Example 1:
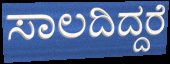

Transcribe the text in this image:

ಸಾಲದಿದ್ದರೆ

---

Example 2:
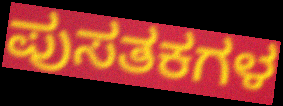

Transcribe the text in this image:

ಪುಸತಕಗಳ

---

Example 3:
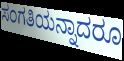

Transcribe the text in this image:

ಸಂಗತಿಯನ್ನಾದರೂ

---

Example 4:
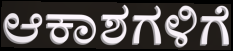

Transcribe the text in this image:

ಆಕಾಶಗಳಿಗೆ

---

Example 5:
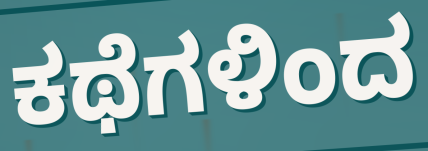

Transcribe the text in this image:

ಕಥೆಗಳಿಂದ